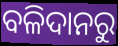
ବଳିଦାନରୁ